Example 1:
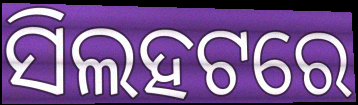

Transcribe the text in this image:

ସିଲହଟରେ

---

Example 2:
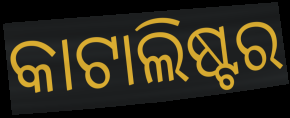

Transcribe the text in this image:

କାଟାଲିଷ୍ଟର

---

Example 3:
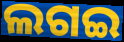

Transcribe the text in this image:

ଲଗଇ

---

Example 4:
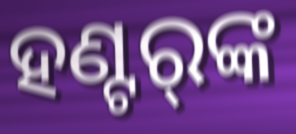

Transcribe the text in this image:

ହଣ୍ଟର୍‌ଙ୍କ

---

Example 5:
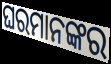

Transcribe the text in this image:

ଘରମାନଙ୍କର